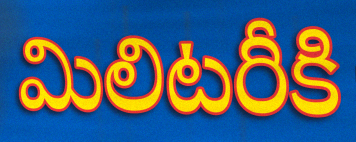
మిలిటరీకి